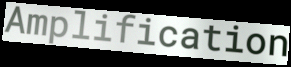
Amplification